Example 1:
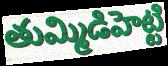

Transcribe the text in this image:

తుమ్మిడిహెట్టి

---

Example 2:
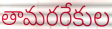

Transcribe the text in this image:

తామరరేకుల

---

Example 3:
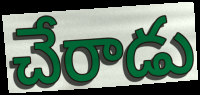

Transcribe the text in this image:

చేరాడు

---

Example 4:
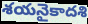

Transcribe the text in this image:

శయనైకాదశి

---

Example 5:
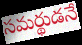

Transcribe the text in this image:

సమర్థుడనే